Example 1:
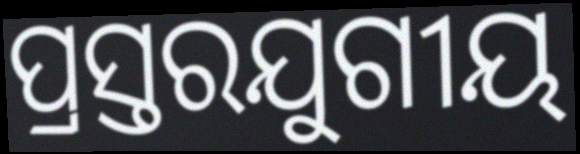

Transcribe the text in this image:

ପ୍ରସ୍ତରଯୁଗୀୟ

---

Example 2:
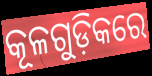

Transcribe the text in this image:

କୂଳଗୁଡ଼ିକରେ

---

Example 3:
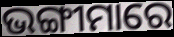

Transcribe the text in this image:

ଭଙ୍ଗୀମାରେ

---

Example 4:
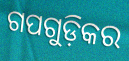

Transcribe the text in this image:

ଗପଗୁଡ଼ିକର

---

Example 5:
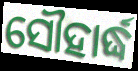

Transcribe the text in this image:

ସୌହାର୍ଦ୍ଧ